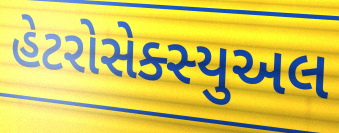
હેટરોસેક્સ્યુઅલ